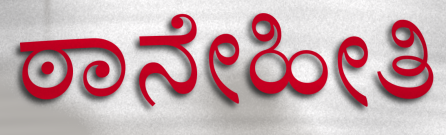
ಠಾನೇಹೀತಿ